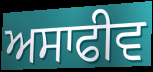
ਅਸਾਫੀਵ